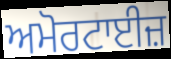
ਅਮੋਰਟਾਈਜ਼